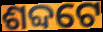
ଶବ୍ଦଟେ